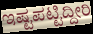
ಇಷ್ಟಪಟ್ಟಿದ್ದೀರಿ